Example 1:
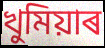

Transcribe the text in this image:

খুমিয়াৰ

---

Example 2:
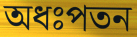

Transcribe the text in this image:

অধঃপতন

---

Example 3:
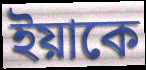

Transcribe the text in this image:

ইয়াকে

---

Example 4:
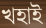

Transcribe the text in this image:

খহাই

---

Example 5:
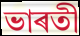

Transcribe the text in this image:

ভাৰতী